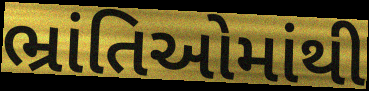
ભ્રાંતિઓમાંથી